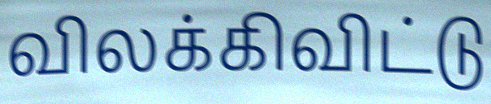
விலக்கிவிட்டு